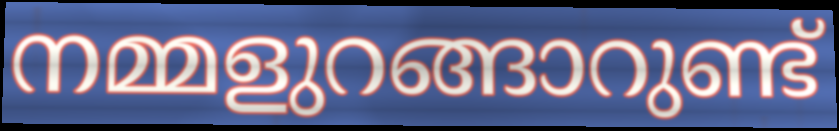
നമ്മളുറങ്ങാറുണ്ട്